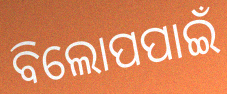
ବିଲୋପପାଇଁ